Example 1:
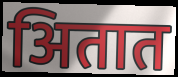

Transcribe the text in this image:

अितात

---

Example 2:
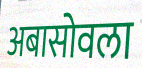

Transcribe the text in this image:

अबासोवला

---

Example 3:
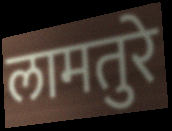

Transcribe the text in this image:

लामतुरे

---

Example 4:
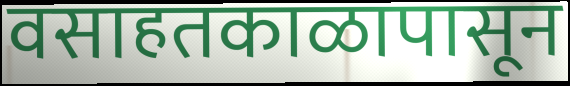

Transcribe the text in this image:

वसाहतकाळापासून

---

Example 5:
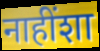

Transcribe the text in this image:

नाहींशा